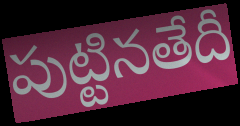
పుట్టినతేదీ